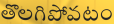
తొలగిపోవటం